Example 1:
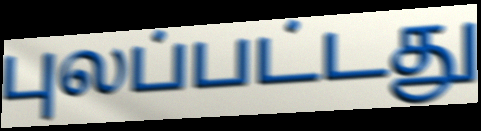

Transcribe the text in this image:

புலப்பட்டது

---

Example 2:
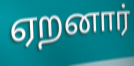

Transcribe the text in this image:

ஏறனார்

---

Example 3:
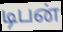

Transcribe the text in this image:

டிபன்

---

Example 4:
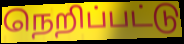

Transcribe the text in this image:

நெறிப்பட்டு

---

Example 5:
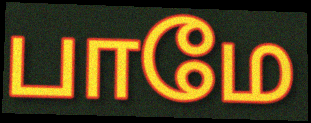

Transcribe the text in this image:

பாமே